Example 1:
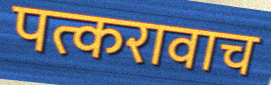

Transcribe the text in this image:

पत्करावाच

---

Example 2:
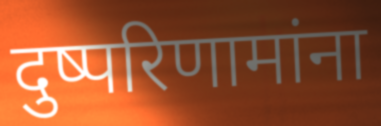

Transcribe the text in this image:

दुष्परिणामांना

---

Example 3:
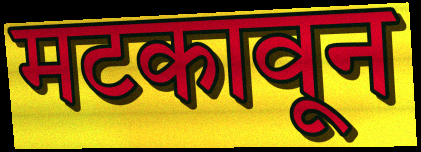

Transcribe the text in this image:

मटकावून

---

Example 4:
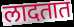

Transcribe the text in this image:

लादतात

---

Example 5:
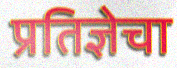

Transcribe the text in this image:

प्रतिज्ञेचा